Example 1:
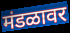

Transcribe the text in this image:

मंडळावर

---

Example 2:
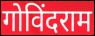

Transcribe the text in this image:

गोविंदराम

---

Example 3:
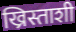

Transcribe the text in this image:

ख्रिस्ताशी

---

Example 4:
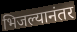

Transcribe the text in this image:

भिजल्यानंतर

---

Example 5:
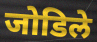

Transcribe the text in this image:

जोडिले